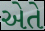
એતે